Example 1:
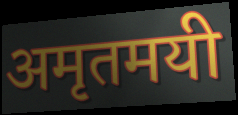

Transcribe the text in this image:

अमृतमयी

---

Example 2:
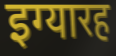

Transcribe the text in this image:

इग्यारह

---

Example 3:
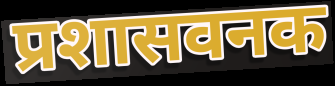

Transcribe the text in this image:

प्रशासवनक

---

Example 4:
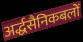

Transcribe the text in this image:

अर्द्धसैनिकबलों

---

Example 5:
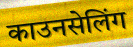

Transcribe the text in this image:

काउनसेलिंग